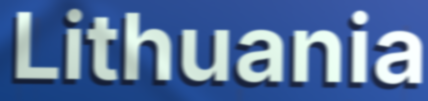
Lithuania